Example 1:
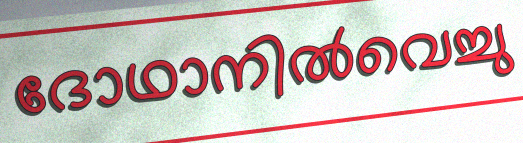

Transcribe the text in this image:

ദോഥാനിൽവെച്ചു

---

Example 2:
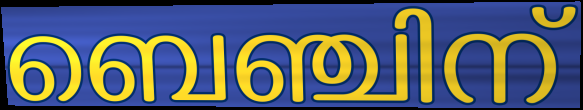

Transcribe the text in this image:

ബെഞ്ചിന്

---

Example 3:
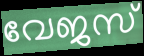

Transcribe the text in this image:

വേജസ്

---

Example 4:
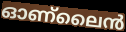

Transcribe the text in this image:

ഓണ്ലൈൻ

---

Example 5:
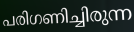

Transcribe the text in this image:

പരിഗണിച്ചിരുന്ന